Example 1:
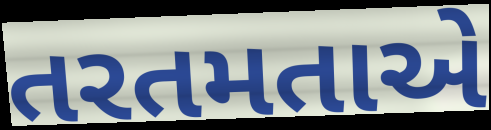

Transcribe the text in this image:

તરતમતાએ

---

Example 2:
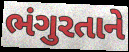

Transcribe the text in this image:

ભંગુરતાને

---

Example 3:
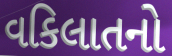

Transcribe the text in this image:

વકિલાતનો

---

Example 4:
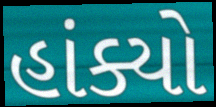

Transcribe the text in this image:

હાંક્યો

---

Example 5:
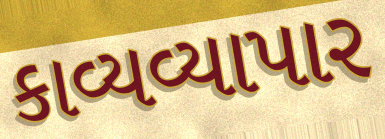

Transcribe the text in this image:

કાવ્યવ્યાપાર